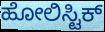
ಹೋಲಿಸ್ಟಿಕ್